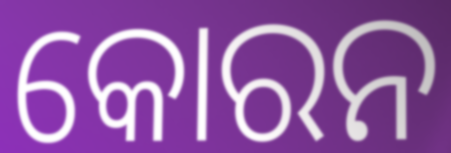
କୋରନ